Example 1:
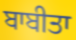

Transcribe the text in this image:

ਬਾਬੀਤਾ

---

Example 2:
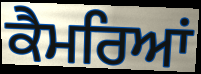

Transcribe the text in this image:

ਕੈਮਰਿਆਂ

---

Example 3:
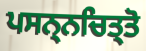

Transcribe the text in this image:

ਪਸਨ੍ਨਚਿਤ੍ਤੋ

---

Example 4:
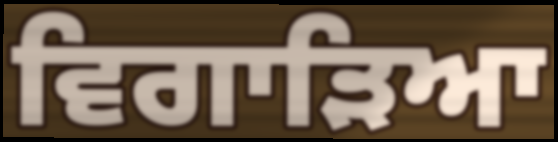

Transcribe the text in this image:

ਵਿਗਾੜਿਆ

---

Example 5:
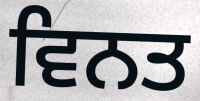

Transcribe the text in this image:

ਵਿਨਤ